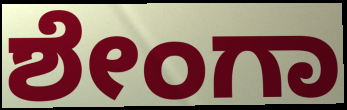
ಶೇಂಗಾ